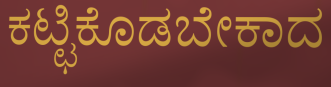
ಕಟ್ಟಿಕೊಡಬೇಕಾದ